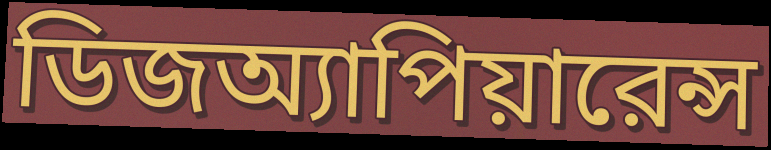
ডিজঅ্যাপিয়ারেন্স